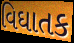
વિઘાતક